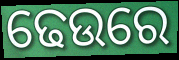
ଢେଉରେ